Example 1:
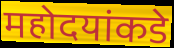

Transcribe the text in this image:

महोदयांकडे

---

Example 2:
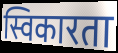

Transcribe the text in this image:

स्विकारता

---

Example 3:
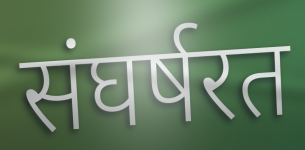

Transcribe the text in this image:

संघर्षरत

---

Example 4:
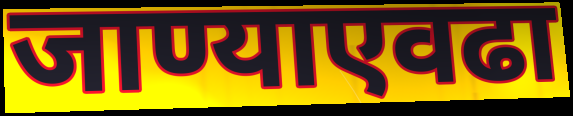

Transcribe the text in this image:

जाण्याएवढा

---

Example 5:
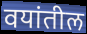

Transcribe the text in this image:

वयांतील